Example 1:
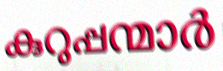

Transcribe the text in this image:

കുറുപ്പന്മാർ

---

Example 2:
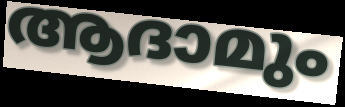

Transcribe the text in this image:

ആദാമും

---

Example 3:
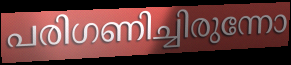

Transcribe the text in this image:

പരിഗണിച്ചിരുന്നോ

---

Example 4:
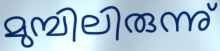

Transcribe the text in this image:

മുമ്പിലിരുന്നു്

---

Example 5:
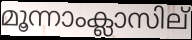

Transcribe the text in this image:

മൂന്നാംക്ലാസില്